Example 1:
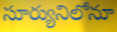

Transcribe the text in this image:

సూర్యునిలోనూ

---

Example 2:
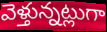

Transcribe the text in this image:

వెళ్తున్నట్లుగా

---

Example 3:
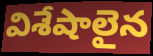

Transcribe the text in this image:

విశేషాలైన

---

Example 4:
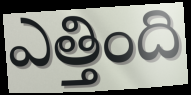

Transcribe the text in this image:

ఎత్తింది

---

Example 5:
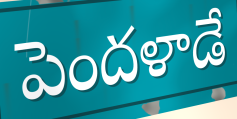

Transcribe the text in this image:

పెందళాడే